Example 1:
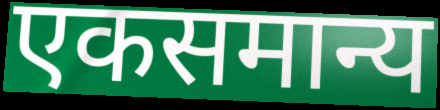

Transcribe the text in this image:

एकसमान्य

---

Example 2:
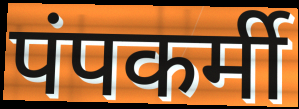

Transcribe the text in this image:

पंपकर्मी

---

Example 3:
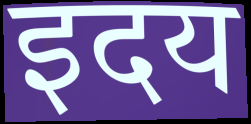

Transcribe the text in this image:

इदय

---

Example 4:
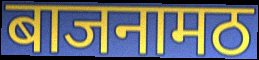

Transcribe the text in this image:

बाजनामठ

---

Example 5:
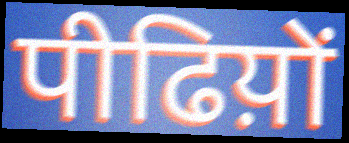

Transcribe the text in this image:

पीढिय़ों